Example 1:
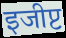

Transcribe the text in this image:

इजीप्ट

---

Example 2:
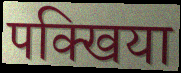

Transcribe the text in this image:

पक्खिया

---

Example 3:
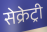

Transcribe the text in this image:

सेक्रेट्री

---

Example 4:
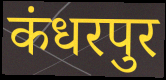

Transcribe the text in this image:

कंधरपुर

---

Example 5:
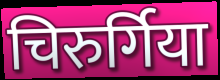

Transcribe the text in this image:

चिरुर्गिया